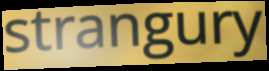
strangury